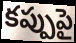
కప్పుపై